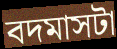
বদমাসটা